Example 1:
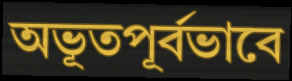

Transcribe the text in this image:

অভূতপূর্বভাবে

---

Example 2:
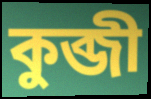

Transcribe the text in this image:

কুব্জী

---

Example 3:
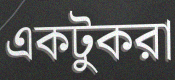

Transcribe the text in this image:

একটুকরা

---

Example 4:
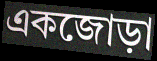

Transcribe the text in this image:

একজোড়া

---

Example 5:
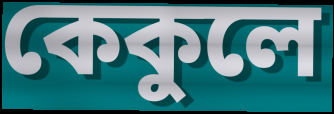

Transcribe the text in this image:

কেকুলে